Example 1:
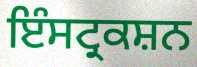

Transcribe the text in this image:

ਇੰਸਟ੍ਰਕਸ਼ਨ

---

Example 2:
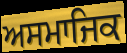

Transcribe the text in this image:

ਅਸਮਾਜਿਕ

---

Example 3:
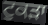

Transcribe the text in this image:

ਟੁਕੜਾ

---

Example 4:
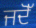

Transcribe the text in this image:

ਜਦੋੱ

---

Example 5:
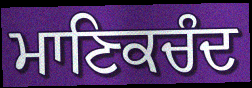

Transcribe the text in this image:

ਮਾਣਿਕਚੰਦ